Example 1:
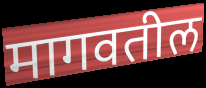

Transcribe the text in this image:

मागवतील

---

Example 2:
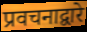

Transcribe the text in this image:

प्रवचनाद्वारे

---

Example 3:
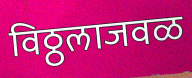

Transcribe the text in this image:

विठ्ठलाजवळ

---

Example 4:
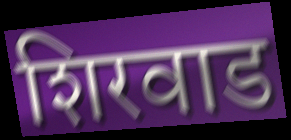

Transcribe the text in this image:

शिरवाड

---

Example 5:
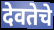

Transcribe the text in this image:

देवतेचे